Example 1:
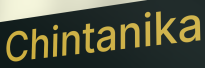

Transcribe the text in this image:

Chintanika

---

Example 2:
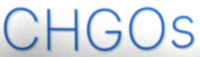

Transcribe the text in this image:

CHGOs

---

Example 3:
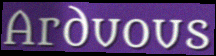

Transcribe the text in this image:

Arduous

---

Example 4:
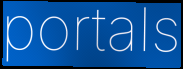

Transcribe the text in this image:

portals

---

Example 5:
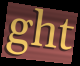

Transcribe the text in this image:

ght